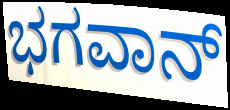
ಭಗವಾನ್